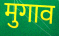
मुगाव